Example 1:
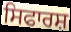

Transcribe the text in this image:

ਸਿਫਾਰਸ਼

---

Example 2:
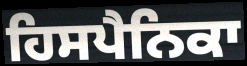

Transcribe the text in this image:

ਹਿਸਪੈਨਿਕਾ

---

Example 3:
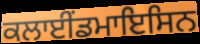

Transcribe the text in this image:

ਕਲਾਈਂਡਮਾਇਸਿਨ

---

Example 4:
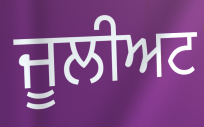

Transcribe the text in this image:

ਜੂਲੀਅਟ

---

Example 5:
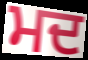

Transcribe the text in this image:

ਮਦ